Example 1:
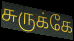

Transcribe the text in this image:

சுருக்கே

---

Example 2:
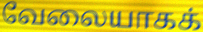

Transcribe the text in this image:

வேலையாகக்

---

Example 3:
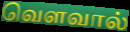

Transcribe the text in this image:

வெளவால்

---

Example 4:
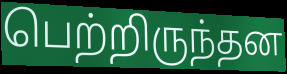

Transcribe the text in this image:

பெற்றிருந்தன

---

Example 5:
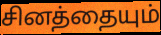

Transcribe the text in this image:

சினத்தையும்